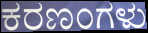
ಕರಣಂಗಳು